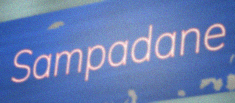
Sampadane